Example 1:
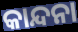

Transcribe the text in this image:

କାନ୍ଦନା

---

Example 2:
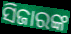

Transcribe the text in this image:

ସିଜାରଙ୍କ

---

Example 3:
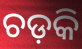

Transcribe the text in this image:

ଚଡ଼କି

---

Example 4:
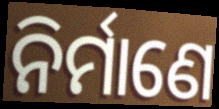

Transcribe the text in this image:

ନିର୍ମାଣେ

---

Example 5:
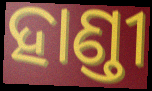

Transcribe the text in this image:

ହାଣ୍ଡୀ